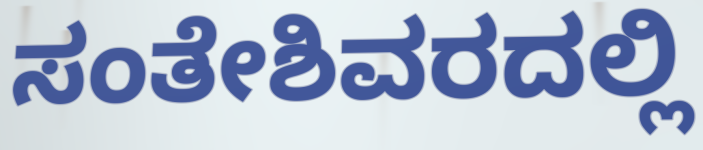
ಸಂತೇಶಿವರದಲ್ಲಿ